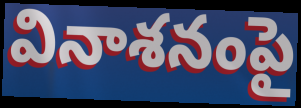
వినాశనంపై